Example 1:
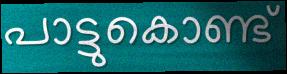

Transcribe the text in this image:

പാട്ടുകൊണ്ട്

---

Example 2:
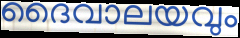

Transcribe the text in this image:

ദൈവാലയവും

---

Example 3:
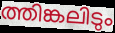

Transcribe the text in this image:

ത്തിങ്കലിടും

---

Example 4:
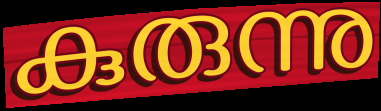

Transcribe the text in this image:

കുരുന്നു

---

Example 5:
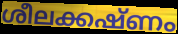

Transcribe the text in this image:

ശീലക്കഷ്ണം